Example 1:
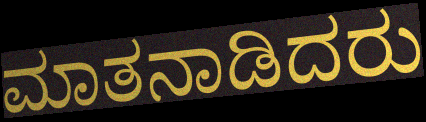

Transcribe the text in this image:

ಮಾತನಾಡಿದರು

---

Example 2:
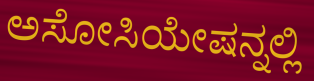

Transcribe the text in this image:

ಅಸೋಸಿಯೇಷನ್ನಲ್ಲಿ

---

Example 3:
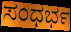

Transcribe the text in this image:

ಸಂಧರ್ಭ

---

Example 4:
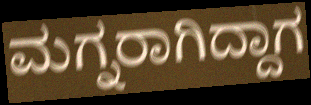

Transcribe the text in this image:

ಮಗ್ನರಾಗಿದ್ದಾಗ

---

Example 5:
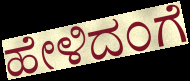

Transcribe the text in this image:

ಹೇಳಿದಂಗೆ